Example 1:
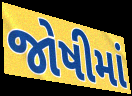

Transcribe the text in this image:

જોષીમાં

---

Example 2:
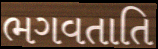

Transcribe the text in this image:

ભગવતાતિ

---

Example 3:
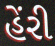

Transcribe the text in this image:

હેંરી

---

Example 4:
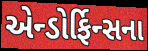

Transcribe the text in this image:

એન્ડોર્ફિન્સના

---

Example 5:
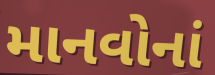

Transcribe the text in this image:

માનવોનાં